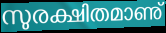
സുരക്ഷിതമാണു്